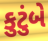
કુટુંબે